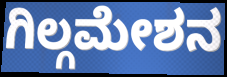
ಗಿಲ್ಗಮೇಶನ